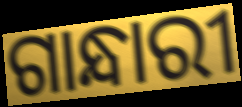
ଗାନ୍ଧାରୀ